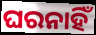
ଘରନାହିଁ